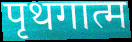
पृथगात्म